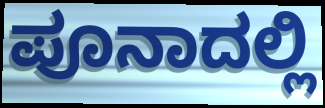
ಪೂನಾದಲ್ಲಿ